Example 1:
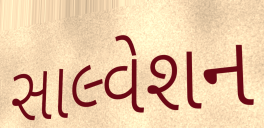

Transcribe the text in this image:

સાલ્વેશન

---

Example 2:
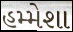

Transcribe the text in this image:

હમ્મેશા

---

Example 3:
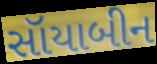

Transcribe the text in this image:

સૉયાબીન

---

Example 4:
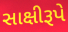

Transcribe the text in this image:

સાક્ષીરૂપે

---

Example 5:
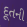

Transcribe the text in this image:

દૂતની